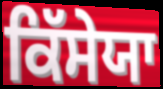
ਕਿੱਸੇਯਾ